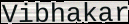
Vibhakar